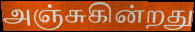
அஞ்சுகின்றது